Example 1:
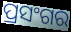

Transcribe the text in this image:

ପ୍ରସଂଗର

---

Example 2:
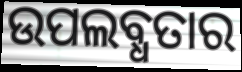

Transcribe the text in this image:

ଉପଲବ୍ଧତାର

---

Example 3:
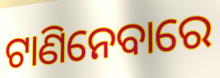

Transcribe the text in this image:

ଟାଣିନେବାରେ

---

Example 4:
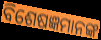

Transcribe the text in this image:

ବିଶେଷଜ୍ଞମାନଙ୍କ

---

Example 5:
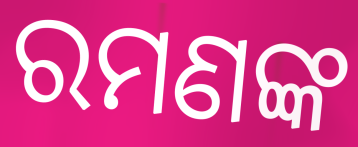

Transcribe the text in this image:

ରମଣଙ୍କ